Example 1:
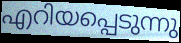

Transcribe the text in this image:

എറിയപ്പെടുന്നു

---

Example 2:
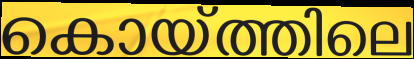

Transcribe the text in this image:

കൊയ്ത്തിലെ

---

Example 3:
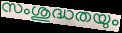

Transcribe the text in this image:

സംശുദ്ധതയും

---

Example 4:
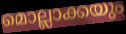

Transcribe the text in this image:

മൊല്ലാക്കയും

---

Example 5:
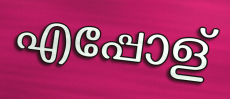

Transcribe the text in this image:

എപ്പോള്